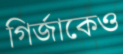
গির্জাকেও